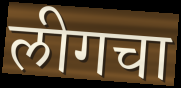
लीगचा